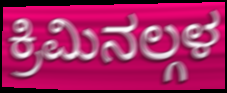
ಕ್ರಿಮಿನಲ್ಗಳ